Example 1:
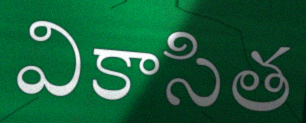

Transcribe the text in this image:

వికాసిత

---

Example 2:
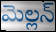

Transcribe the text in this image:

మెల్లన్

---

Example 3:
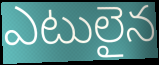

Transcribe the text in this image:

ఎటులైన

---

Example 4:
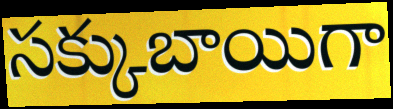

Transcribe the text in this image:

సక్కుబాయిగా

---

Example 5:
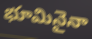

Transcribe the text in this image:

భూమినైనా